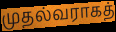
முதல்வராகத்